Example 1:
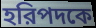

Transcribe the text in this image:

হরিপদকে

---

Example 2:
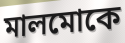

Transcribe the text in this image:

মালমোকে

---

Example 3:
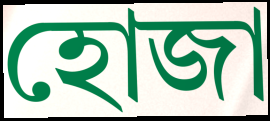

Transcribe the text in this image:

হোজা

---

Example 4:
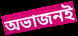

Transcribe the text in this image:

অভাজনই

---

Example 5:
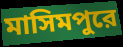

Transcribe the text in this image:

মাসিমপুরে